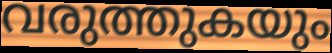
വരുത്തുകയും